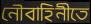
নৌবাহিনীতে